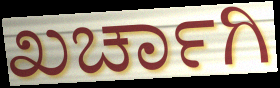
ಖರ್ಚಾಗಿ